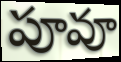
పూవూ